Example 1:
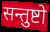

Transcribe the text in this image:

सन्तुष्टो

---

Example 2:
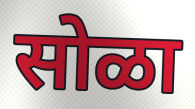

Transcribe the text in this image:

सोळा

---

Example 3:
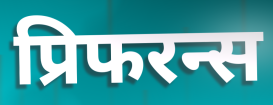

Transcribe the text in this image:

प्रिफरन्स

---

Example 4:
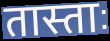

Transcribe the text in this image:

तास्ताः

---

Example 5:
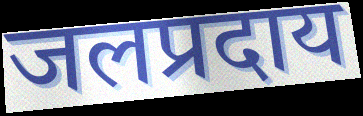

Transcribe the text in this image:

जलप्रदाय